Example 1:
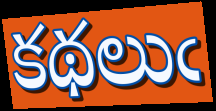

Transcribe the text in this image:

కథలుఁ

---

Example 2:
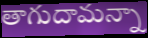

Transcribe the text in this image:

తాగుదామన్నా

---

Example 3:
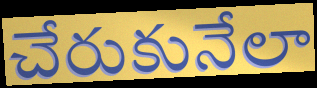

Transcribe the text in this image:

చేరుకునేలా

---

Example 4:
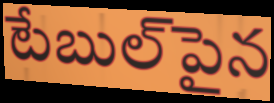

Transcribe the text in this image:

టేబుల్‌పైన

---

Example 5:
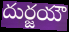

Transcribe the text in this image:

దుర్జయౌ